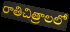
రాతిచిత్రాలలో